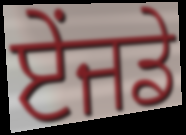
ਏਂਜਡੇ